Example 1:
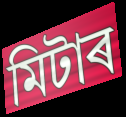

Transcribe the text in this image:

মিটাৰ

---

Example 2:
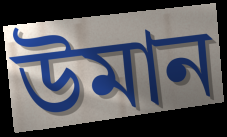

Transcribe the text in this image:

উমান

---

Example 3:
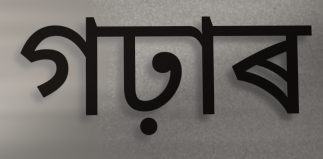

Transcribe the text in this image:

গঢ়াৰ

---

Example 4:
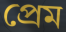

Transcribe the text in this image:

প্ৰেম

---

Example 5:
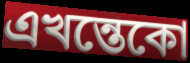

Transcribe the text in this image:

এখন্তেকো